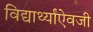
विद्यार्थ्यांऐवजी